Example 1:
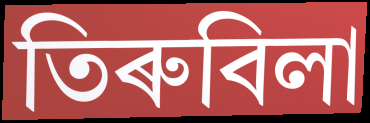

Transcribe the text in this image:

তিৰুবিলা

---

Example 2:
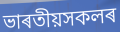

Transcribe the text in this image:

ভাৰতীয়সকলৰ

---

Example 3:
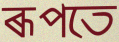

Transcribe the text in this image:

ৰূপতে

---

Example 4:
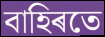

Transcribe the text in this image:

বাহিৰতে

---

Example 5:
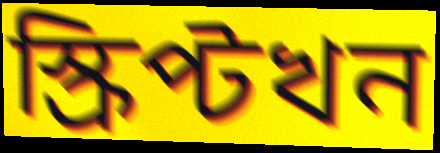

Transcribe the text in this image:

স্ক্ৰিপ্টখন